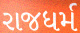
રાજધર્મ